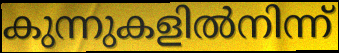
കുന്നുകളിൽനിന്ന്